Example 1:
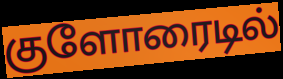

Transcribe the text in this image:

குளோரைடில்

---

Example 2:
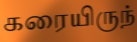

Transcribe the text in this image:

கரையிருந்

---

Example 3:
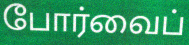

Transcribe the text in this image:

போர்வைப்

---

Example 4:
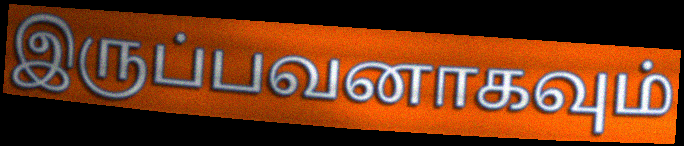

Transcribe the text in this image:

இருப்பவனாகவும்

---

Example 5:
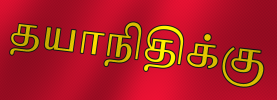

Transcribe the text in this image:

தயாநிதிக்கு